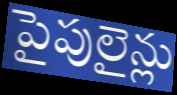
పైపులైన్లు